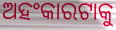
ଅହଂକାରଟାକୁ